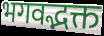
भगवद्भक्त